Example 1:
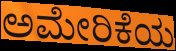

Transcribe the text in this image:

ಅಮೇರಿಕೆಯ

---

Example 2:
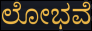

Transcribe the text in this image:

ಲೋಭವೆ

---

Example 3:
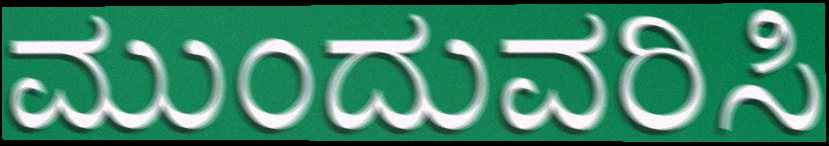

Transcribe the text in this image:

ಮುಂದುವರಿಸಿ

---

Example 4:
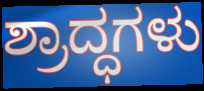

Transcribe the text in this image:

ಶ್ರಾದ್ಧಗಳು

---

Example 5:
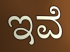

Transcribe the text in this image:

ಇವೆ